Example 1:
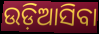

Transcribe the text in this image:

ଉଡ଼ିଆସିବା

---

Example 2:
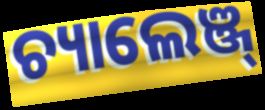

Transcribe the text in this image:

ଚ୍ୟାଲେଞ୍ଜ୍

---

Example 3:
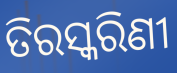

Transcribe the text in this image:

ତିରସ୍କରିଣୀ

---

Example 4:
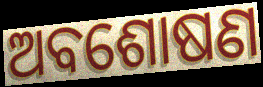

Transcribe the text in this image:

ଅବଶୋଷଣ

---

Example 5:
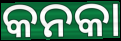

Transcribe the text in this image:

କନକା